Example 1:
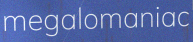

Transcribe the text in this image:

megalomaniac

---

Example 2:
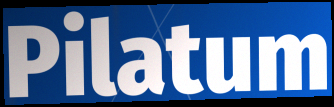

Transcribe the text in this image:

Pilatum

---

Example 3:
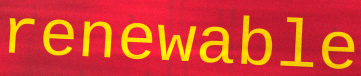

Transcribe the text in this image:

renewable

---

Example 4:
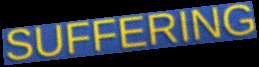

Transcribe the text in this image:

SUFFERING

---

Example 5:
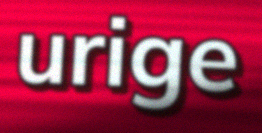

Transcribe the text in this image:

urige